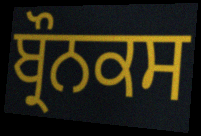
ਬ੍ਰੌਨਕਸ